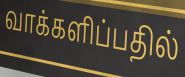
வாக்களிப்பதில்